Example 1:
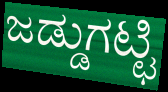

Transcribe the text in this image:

ಜಡ್ಡುಗಟ್ಟಿ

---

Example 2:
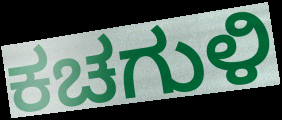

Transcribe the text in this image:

ಕಚಗುಳಿ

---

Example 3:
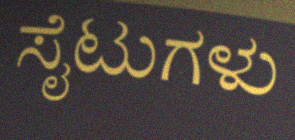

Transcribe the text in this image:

ಸೈಟುಗಳು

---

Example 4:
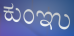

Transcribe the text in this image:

ಕುಂಞು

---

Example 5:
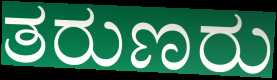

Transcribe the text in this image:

ತರುಣರು